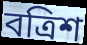
বত্রিশ